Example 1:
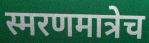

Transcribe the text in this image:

स्मरणमात्रेच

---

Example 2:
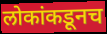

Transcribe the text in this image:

लोकांकडूनच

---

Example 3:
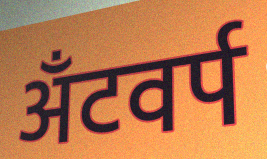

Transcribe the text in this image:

अँटवर्प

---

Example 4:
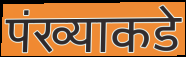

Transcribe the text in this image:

पंख्याकडे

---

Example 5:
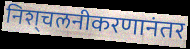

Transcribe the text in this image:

निश्चलनीकरणानंतर